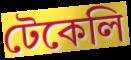
টেকেলি